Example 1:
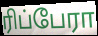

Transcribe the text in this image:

ரிப்பேரா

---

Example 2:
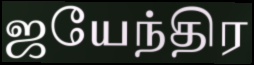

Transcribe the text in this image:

ஜயேந்திர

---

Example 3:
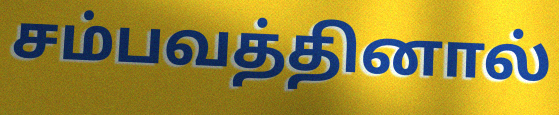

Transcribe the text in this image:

சம்பவத்தினால்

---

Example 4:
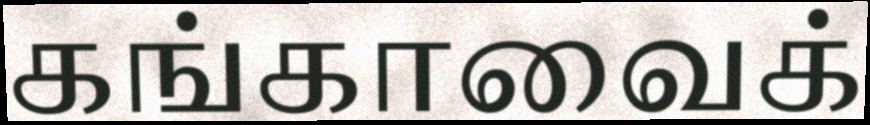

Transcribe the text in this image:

கங்காவைக்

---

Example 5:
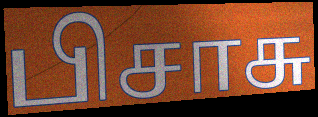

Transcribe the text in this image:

பிசாசு